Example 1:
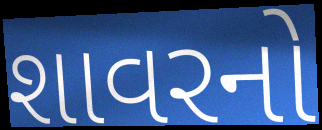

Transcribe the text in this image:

શાવરનો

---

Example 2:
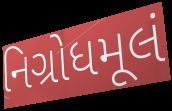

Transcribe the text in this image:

નિગ્રોધમૂલં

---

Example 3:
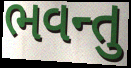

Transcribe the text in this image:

ભવન્તુ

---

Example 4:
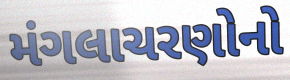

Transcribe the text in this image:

મંગલાચરણોનો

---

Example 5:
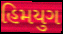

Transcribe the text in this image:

હિમયુગ